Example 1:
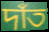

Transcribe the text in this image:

দাঁত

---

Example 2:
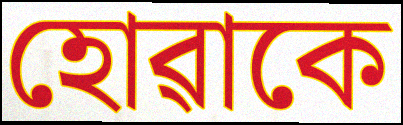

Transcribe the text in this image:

হোৱাকে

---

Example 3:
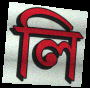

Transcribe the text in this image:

লি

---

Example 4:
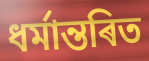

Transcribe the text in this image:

ধৰ্মান্তৰিত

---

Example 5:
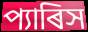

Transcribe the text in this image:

প্যাৰিস